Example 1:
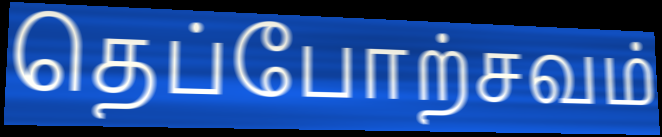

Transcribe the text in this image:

தெப்போற்சவம்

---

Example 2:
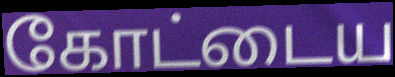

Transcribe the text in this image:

கோட்டைய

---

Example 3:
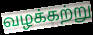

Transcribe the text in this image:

வழக்கற்று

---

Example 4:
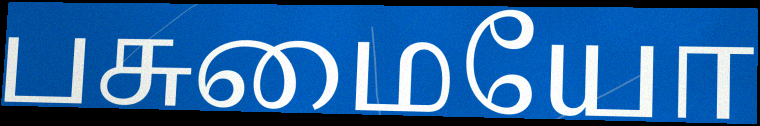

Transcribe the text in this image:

பசுமையோ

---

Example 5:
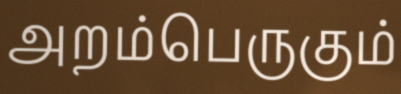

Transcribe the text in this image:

அறம்பெருகும்